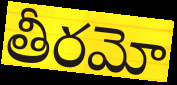
తీరమో